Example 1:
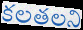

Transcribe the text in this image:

కలతలని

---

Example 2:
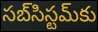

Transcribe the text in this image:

సబ్‌సిస్టమ్‌కు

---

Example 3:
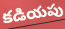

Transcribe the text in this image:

కడియపు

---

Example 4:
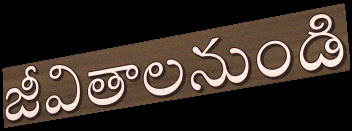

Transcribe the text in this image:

జీవితాలనుండి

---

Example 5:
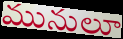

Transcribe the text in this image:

మునులూ